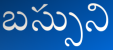
బస్సుని